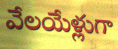
వేలయేళ్లుగా